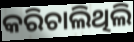
କରିଚାଲିଥିଲି